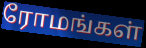
ரோமங்கள்